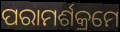
ପରାମର୍ଶକ୍ରମେ